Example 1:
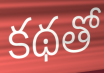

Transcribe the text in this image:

కథతో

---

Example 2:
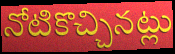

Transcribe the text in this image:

నోటికొచ్చినట్లు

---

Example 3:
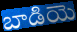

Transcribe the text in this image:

బాడియె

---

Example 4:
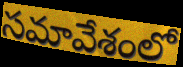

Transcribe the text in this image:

సమావేశంలో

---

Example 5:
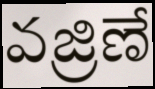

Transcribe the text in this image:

వజ్రిణే